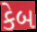
કેબ